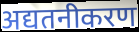
अद्यतनीकरण